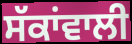
ਸੱਕਾਂਵਾਲੀ